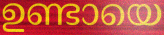
ഉണ്ടായെ